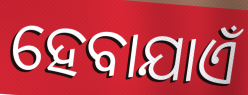
ହେବାଯାଏଁ